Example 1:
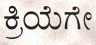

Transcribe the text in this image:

ಕ್ರಿಯೆಗೇ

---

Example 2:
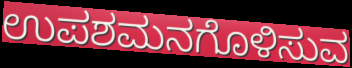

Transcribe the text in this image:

ಉಪಶಮನಗೊಳಿಸುವ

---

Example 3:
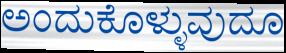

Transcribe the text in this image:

ಅಂದುಕೊಳ್ಳುವುದೂ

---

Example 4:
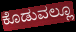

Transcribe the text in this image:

ಕೊಡುವಲ್ಲೂ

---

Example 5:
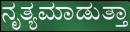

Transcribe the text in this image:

ನೃತ್ಯಮಾಡುತ್ತಾ